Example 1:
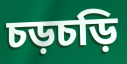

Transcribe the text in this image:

চড়চড়ি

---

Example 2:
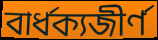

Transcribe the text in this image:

বার্ধক্যজীর্ণ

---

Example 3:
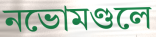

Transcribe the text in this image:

নভোমণ্ডলে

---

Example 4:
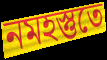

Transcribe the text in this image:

নমহস্তুতে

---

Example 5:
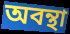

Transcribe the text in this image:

অবন্থা